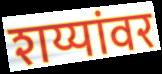
शय्यांवर